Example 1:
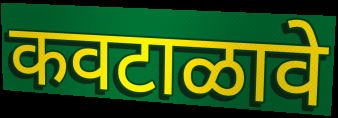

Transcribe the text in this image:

कवटाळावे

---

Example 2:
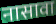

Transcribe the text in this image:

नासावा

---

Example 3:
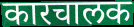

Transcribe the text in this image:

कारचालक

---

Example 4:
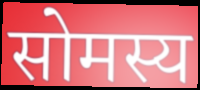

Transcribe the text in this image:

सोमस्य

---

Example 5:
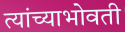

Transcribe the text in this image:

त्यांच्याभोवती